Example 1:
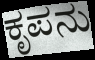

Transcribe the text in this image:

ಕೃಪನು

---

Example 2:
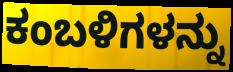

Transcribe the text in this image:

ಕಂಬಳಿಗಳನ್ನು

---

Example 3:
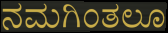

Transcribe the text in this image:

ನಮಗಿಂತಲೂ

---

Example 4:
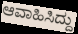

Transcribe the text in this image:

ಆವಾಹಿಸಿದ್ದು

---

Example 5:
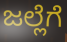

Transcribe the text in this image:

ಜಲ್ಲೆಗೆ